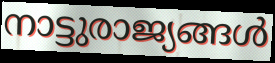
നാട്ടുരാജ്യങ്ങൾ